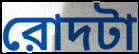
রোদটা